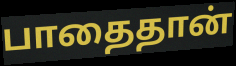
பாதைதான்